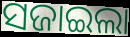
ସଜାଇଲା